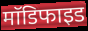
मॉडिफाइड